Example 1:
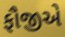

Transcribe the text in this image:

ફૌજીએ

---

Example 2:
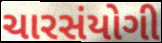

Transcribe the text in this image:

ચારસંયોગી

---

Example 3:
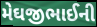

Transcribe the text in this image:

મેઘજીભાઈની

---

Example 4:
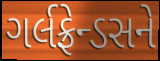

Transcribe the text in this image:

ગર્લફ્રેન્ડસને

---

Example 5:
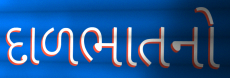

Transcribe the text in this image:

દાળભાતનો